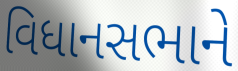
વિધાનસભાને